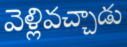
వెళ్లివచ్చాడు